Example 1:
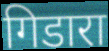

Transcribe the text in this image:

गिडारा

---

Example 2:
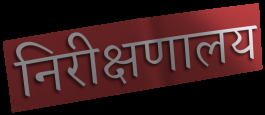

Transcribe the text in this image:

निरीक्षणालय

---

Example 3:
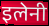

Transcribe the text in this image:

इलेनी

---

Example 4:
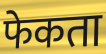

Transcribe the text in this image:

फेकता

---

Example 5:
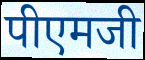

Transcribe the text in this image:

पीएमजी